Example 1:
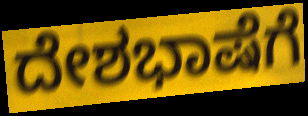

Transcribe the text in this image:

ದೇಶಭಾಷೆಗೆ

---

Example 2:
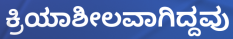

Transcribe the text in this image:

ಕ್ರಿಯಾಶೀಲವಾಗಿದ್ದವು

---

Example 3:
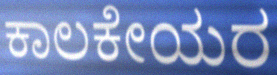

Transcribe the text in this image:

ಕಾಲಕೇಯರ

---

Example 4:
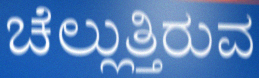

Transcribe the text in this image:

ಚೆಲ್ಲುತ್ತಿರುವ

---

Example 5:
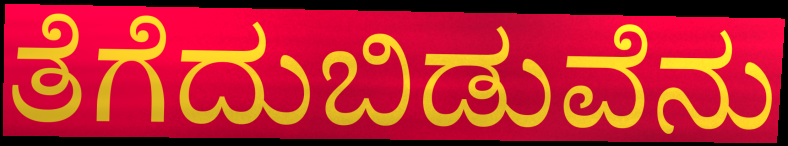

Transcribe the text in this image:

ತೆಗೆದುಬಿಡುವೆನು